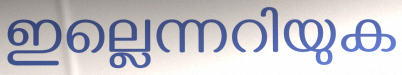
ഇല്ലെന്നറിയുക